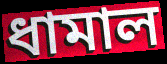
ধামাল